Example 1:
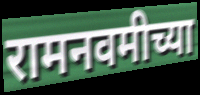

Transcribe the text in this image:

रामनवमीच्या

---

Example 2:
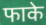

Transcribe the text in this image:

फाके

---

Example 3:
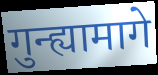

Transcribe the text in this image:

गुन्ह्यामागे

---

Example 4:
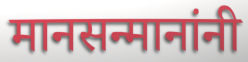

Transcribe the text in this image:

मानसन्मानांनी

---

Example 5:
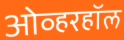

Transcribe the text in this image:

ओव्हरहॉल